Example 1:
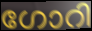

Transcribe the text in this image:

ഗോറി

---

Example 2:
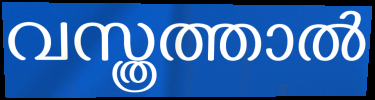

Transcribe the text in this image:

വസ്ത്രത്താൽ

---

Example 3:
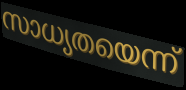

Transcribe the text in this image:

സാധ്യതയെന്ന്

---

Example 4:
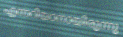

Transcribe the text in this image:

എന്നറിയാനായിരുന്നു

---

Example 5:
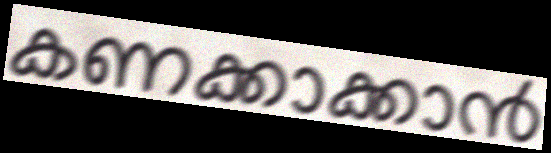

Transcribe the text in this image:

കണക്കാക്കാൻ